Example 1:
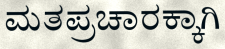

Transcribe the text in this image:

ಮತಪ್ರಚಾರಕ್ಕಾಗಿ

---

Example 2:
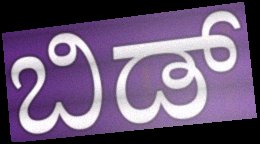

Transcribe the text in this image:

ಬಿಡ್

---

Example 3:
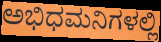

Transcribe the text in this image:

ಅಭಿಧಮನಿಗಳಲ್ಲಿ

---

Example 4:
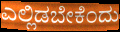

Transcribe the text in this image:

ಎಲ್ಲಿಡಬೇಕೆಂದು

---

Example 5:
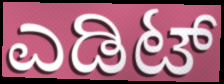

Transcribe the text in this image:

ಎಡಿಟ್